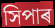
সিপাৰ